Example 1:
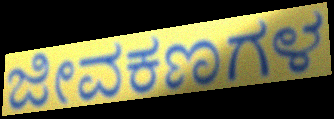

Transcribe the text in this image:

ಜೀವಕಣಗಳ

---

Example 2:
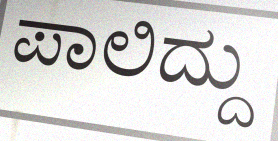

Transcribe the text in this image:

ಪಾಲಿದ್ದು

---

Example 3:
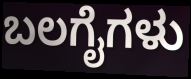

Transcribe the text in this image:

ಬಲಗೈಗಳು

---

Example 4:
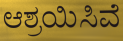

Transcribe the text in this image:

ಆಶ್ರಯಿಸಿವೆ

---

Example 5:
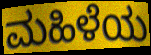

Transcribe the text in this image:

ಮಹಿಳೆಯ